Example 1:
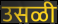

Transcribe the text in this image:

उसळी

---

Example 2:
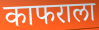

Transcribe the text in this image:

काफराला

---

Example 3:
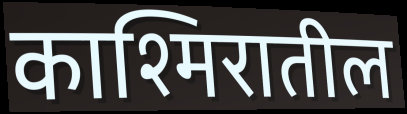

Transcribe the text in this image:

काश्मिरातील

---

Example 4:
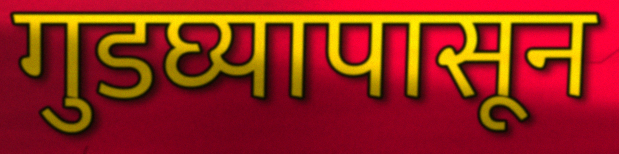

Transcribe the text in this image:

गुडघ्यापासून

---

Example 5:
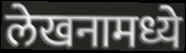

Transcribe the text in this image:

लेखनामध्ये